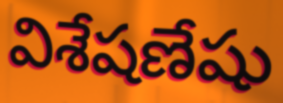
విశేషణేషు